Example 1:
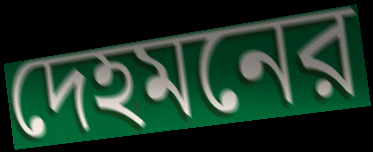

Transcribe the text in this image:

দেহমনের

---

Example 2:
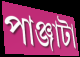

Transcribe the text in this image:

পাঞ্জাটা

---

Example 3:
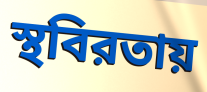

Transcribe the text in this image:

স্থবিরতায়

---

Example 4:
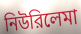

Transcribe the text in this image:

নিউরিলেমা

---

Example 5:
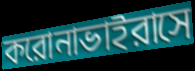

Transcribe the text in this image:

করোনাভাইরাসে